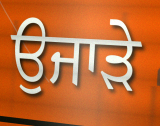
ਉਜਾੜੇ